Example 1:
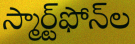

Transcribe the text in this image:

స్మార్ట్‌ఫోన్‌ల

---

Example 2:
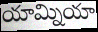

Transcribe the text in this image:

యామ్నియా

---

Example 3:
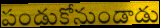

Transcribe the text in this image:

పండుకోనుండాడు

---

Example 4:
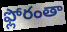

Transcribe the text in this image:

ఫ్లోరంతా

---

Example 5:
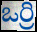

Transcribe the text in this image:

ఒర్రి